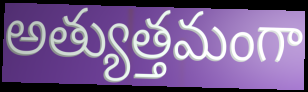
అత్యుత్తమంగా